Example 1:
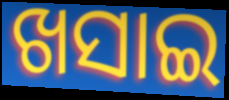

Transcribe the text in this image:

ଖସାଇ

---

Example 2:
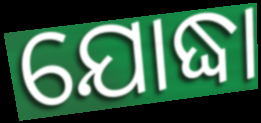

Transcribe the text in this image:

ଯୋଦ୍ଧା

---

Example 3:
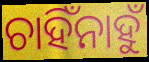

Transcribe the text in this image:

ଚାହିଁନାହୁଁ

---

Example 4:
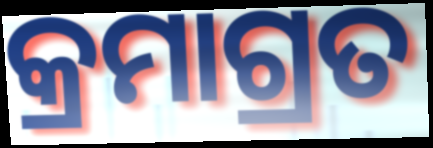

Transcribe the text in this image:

କ୍ରମାଗ୍ରତ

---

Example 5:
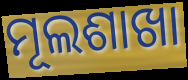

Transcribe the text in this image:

ମୂଲଶାଖା